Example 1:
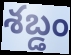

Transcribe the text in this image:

శబ్డం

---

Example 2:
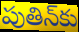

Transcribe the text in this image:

పుతిన్‌కు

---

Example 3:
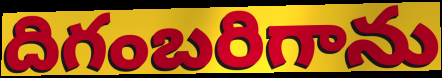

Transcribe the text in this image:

దిగంబరిగాను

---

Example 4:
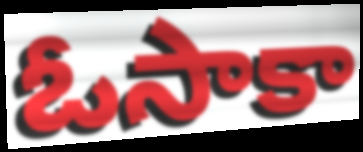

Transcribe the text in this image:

ఓసాకా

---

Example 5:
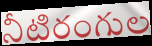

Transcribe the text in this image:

నీటిరంగుల